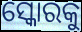
ସ୍କୋରକୁ